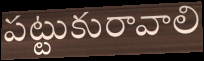
పట్టుకురావాలి